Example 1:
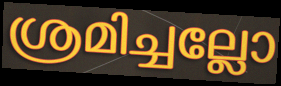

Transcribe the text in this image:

ശ്രമിച്ചല്ലോ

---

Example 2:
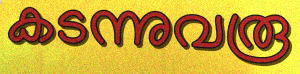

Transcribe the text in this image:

കടന്നുവരൂ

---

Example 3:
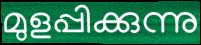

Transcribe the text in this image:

മുളപ്പിക്കുന്നു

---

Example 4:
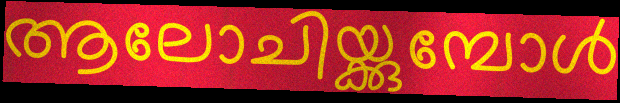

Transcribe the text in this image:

ആലോചിയ്ക്കുമ്പോൾ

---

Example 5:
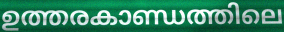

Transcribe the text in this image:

ഉത്തരകാണ്ഡത്തിലെ